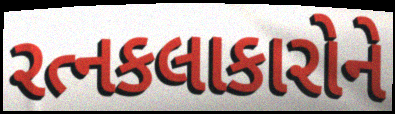
રત્નકલાકારોને